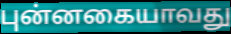
புன்னகையாவது